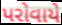
પરોવાયે